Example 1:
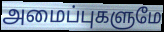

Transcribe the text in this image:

அமைப்புகளுமே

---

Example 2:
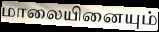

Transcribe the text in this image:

மாலையினையும்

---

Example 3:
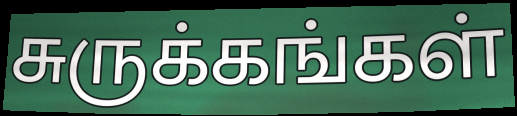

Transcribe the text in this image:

சுருக்கங்கள்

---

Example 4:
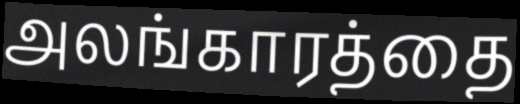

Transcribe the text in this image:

அலங்காரத்தை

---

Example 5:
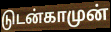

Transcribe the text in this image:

டுடன்காமுன்